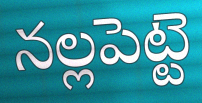
నల్లపెట్టె